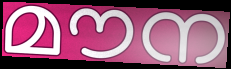
മൗന